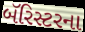
બૅરિસ્ટરના